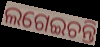
ଲଗେଇଚନ୍ତି